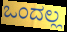
ಒಂದಲ್ಲ